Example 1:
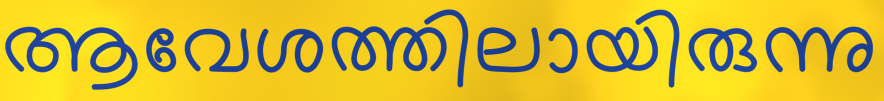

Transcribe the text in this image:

ആവേശത്തിലായിരുന്നു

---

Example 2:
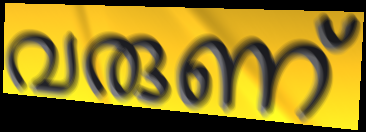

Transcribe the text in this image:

വരുണ്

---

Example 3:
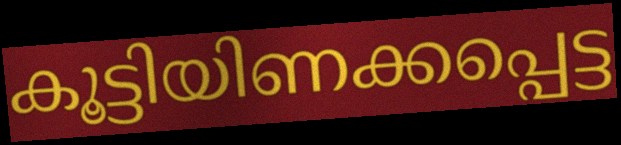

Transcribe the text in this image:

കൂട്ടിയിണക്കപ്പെട്ട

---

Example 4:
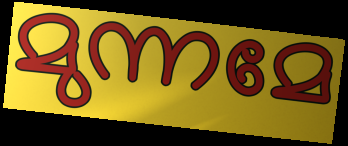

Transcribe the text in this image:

മുന്നമേ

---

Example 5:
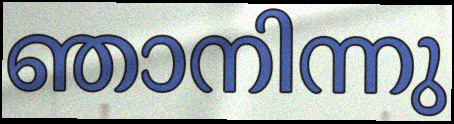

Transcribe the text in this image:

ഞാനിന്നു